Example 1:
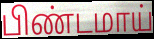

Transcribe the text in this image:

பிண்டமாய்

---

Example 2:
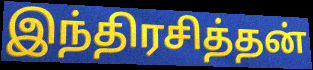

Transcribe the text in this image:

இந்திரசித்தன்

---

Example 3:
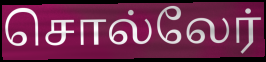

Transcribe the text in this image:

சொல்லேர்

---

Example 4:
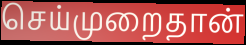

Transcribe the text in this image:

செய்முறைதான்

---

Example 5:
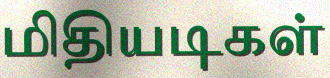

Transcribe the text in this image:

மிதியடிகள்